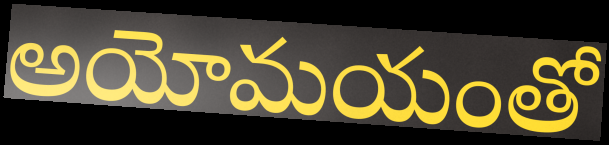
అయోమయంతో